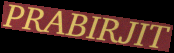
PRABIRJIT